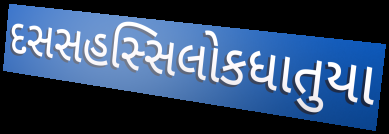
દસસહસ્સિલોકધાતુયા